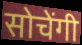
सोचेंगी